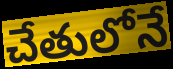
చేతులోనే